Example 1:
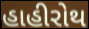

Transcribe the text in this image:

હાહીરોથ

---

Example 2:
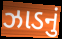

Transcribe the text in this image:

ઝાડનું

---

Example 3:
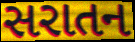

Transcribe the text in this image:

સરાતન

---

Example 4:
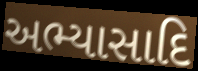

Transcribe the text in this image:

અભ્યાસાદિ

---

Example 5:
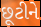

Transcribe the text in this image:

છૂટીને